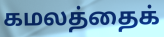
கமலத்தைக்